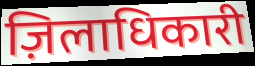
ज़िलाधिकारी